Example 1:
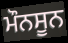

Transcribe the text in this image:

ਮੌਨਸੂਨ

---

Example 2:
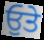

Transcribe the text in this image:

ਓੁਤੇ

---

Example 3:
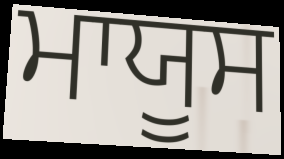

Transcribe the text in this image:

ਮਾਯੂਸ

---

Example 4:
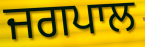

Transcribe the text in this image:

ਜਗਪਾਲ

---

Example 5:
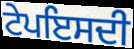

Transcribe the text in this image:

ਟੇਪਇਸਦੀ